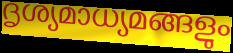
ദൃശ്യമാധ്യമങ്ങളും